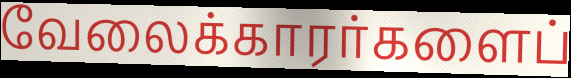
வேலைக்காரர்களைப்